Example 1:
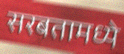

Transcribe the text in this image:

सरबतामध्ये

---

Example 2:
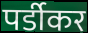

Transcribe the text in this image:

पर्डीकर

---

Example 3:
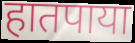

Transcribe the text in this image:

हातपाया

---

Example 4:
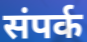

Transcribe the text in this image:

संपर्क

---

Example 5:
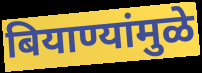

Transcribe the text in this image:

बियाण्यांमुळे